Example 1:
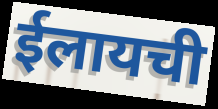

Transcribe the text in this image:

ईलायची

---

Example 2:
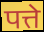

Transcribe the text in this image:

पत्ते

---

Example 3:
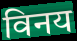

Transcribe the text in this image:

विनय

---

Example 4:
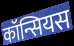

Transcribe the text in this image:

कॉन्सियस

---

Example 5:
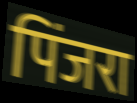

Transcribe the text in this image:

पिंजरा